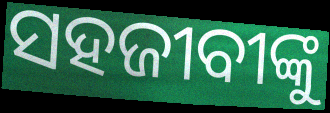
ସହଜୀବୀଙ୍କୁ